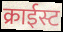
क्राईस्ट